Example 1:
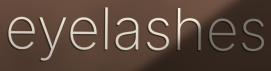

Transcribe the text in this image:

eyelashes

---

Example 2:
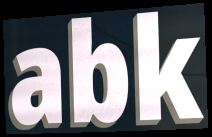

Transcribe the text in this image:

abk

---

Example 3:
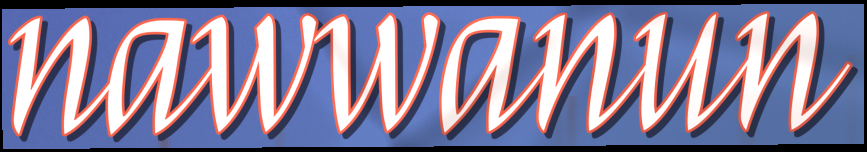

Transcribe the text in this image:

nawwanun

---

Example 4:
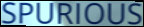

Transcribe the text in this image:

SPURIOUS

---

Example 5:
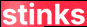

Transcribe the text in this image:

stinks